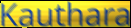
Kauthara